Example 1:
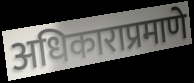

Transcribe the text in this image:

अधिकाराप्रमाणे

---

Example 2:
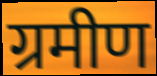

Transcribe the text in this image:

ग्रमीण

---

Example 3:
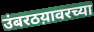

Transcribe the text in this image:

उंबरठय़ावरच्या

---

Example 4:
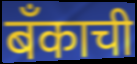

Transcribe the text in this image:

बँकाची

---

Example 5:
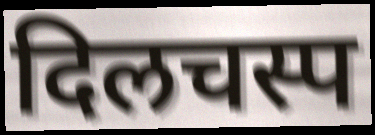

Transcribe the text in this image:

दिलचस्प